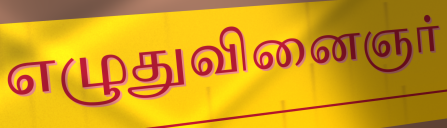
எழுதுவினைஞர்